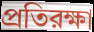
প্রতিরক্ষা